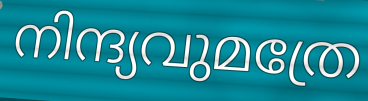
നിന്ദ്യവുമത്രേ